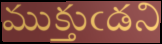
ముక్తుఁడని